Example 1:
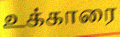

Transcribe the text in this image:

உக்காரை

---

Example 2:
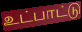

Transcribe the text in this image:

உட்பாட்டு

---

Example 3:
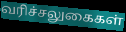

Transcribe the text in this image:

வரிச்சலுகைகள்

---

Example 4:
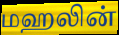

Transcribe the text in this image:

மஹலின்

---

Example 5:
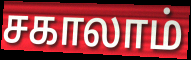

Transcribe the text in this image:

சகாலாம்